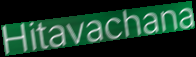
Hitavachana